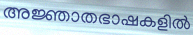
അജ്ഞാതഭാഷകളിൽ